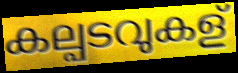
കല്പടവുകള്